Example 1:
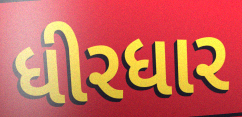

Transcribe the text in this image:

ધીરધાર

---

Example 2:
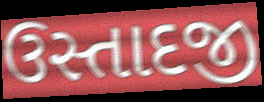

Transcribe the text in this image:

ઉસ્તાદજી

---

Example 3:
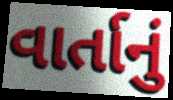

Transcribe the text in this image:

વાર્તાનું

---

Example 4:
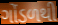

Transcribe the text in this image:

ગોંડળથી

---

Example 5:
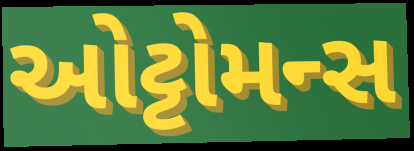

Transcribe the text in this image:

ઓટ્ટોમન્સ